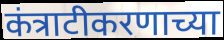
कंत्राटीकरणाच्या